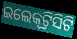
ଇଲେକ୍‌ଟ୍ରିସିଟି